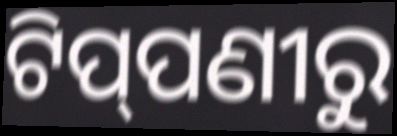
ଟିପ୍‌ପଣୀରୁ